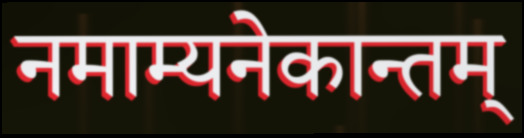
नमाम्यनेकान्तम्